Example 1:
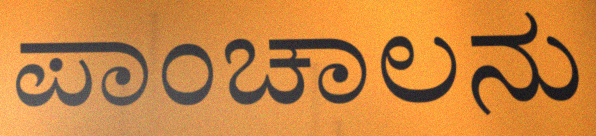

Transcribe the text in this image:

ಪಾಂಚಾಲನು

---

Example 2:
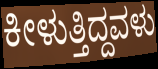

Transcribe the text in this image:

ಕೀಳುತ್ತಿದ್ದವಳು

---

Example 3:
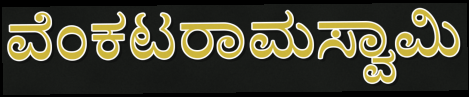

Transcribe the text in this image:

ವೆಂಕಟರಾಮಸ್ವಾಮಿ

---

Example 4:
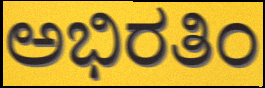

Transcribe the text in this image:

ಅಭಿರತಿಂ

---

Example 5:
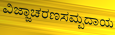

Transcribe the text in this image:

ವಿಜ್ಜಾಚರಣಸಮ್ಪದಾಯ